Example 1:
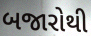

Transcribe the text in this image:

બજારોથી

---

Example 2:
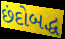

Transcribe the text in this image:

છંદોબદ્ધ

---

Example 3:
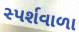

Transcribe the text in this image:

સ્પર્શવાળા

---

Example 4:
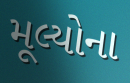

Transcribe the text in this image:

મૂલ્યોના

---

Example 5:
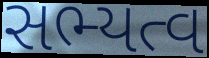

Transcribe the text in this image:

સભ્યત્વ